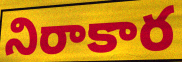
నిరాకార